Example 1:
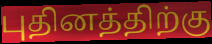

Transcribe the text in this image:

புதினத்திற்கு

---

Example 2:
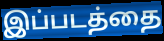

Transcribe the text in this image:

இப்படத்தை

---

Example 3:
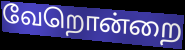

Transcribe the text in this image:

வேறொன்றை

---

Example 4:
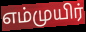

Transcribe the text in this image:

எம்முயிர்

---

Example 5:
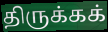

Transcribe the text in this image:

திருக்கக்